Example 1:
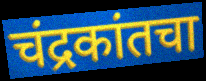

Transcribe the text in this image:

चंद्रकांतचा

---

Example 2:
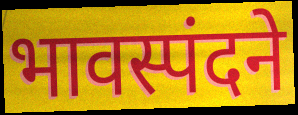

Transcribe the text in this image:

भावस्पंदने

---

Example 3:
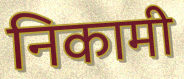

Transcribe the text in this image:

निकामी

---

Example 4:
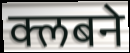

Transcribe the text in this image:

क्लबने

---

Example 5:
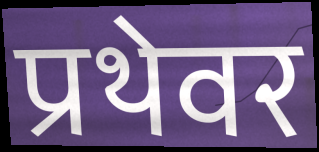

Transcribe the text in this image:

प्रथेवर